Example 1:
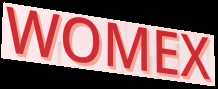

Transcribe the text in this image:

WOMEX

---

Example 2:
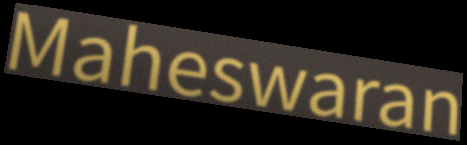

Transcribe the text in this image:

Maheswaran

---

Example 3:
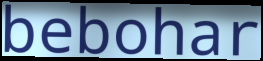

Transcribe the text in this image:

bebohar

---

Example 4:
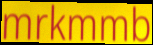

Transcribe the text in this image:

mrkmmb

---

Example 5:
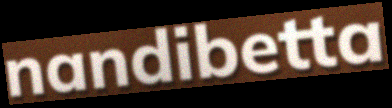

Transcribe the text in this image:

nandibetta